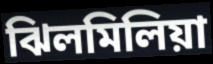
ঝিলমিলিয়া